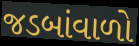
જડબાંવાળો